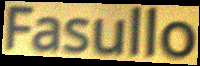
Fasullo